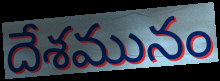
దేశమునం